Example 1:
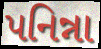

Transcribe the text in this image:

પનિન્ના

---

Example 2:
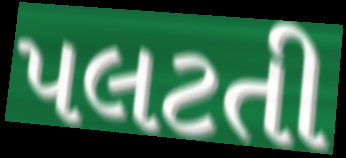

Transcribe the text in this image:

પલટતી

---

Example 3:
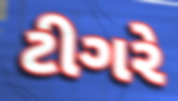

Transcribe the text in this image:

ટીગરે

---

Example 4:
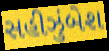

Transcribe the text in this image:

સહીઝુંબેશ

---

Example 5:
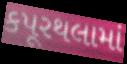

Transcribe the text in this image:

કપૂરથલામાં